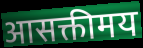
आसक्तीमय